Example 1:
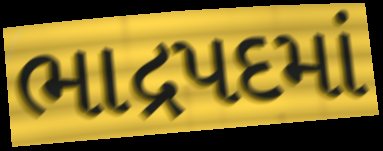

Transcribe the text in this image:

ભાદ્રપદમાં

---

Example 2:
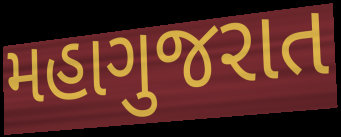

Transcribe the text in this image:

મહાગુજરાત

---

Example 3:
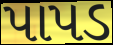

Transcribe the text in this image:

પાપડ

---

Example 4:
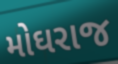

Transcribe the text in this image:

મોઘરાજ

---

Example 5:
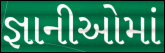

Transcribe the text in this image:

જ્ઞાનીઓમાં